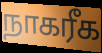
நாகரீக